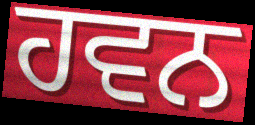
ਹਵਨ